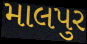
માલપુર